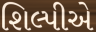
શિલ્પીએ